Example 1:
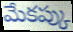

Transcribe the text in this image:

మేకప్కు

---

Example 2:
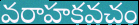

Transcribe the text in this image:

వరాహకవచం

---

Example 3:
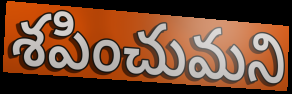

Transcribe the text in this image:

శపించుమని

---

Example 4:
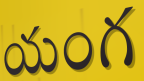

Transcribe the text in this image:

యంగ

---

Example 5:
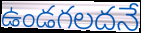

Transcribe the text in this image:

ఉండగలదనే